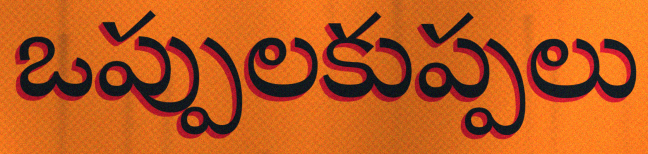
ఒప్పులకుప్పలు